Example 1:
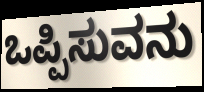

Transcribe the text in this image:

ಒಪ್ಪಿಸುವನು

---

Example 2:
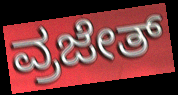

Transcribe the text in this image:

ವ್ರಜೇತ್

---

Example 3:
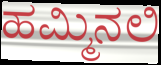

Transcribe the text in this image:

ಹಮ್ಮಿನಲಿ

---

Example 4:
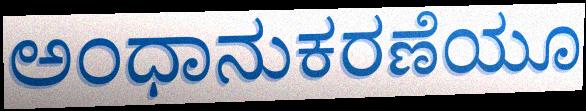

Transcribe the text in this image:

ಅಂಧಾನುಕರಣೆಯೂ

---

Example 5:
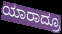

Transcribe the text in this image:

ಯಾರಾದ್ರೂ